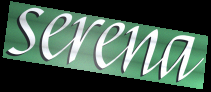
serena